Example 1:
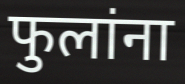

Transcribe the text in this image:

फुलांना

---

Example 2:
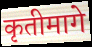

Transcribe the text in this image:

कृतीमागे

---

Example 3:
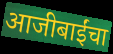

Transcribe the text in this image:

आजीबाईंचा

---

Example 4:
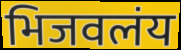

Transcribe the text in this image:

भिजवलंय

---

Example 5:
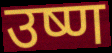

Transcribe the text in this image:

उष्ण